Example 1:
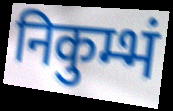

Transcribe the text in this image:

निकुम्भं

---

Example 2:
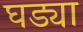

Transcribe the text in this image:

घड्या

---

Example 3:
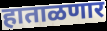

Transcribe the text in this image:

हाताळणार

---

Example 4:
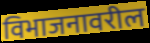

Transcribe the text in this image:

विभाजनावरील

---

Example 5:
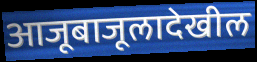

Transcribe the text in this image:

आजूबाजूलादेखील